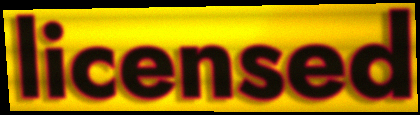
licensed